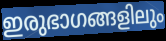
ഇരുഭാഗങ്ങളിലും